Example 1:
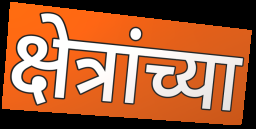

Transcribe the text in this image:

क्षेत्रांच्या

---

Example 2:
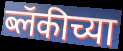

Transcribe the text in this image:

ब्लॅकीच्या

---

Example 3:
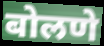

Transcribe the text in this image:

बोलणे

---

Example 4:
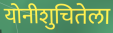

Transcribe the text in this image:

योनीशुचितेला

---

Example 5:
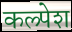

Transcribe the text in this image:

कल्पेश